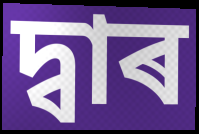
দ্বাৰ